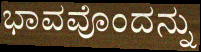
ಭಾವವೊಂದನ್ನು